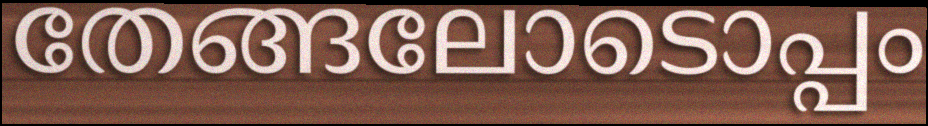
തേങ്ങലോടൊപ്പം